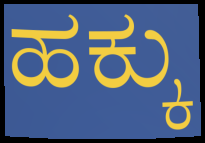
ಹಕ್ಕು